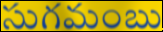
సుగమంబు